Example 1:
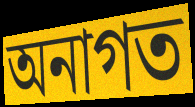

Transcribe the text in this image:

অনাগত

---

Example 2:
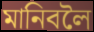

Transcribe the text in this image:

মানিবলৈ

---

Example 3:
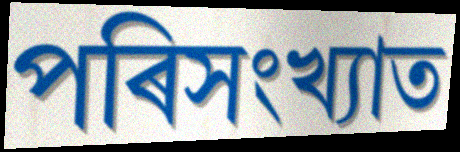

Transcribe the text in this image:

পৰিসংখ্যাত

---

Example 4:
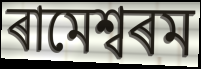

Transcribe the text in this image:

ৰামেশ্বৰম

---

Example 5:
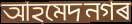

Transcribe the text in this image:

আহমেদনগৰ